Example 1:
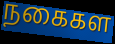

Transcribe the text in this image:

நகைகள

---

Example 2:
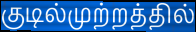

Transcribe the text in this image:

குடில்முற்றத்தில்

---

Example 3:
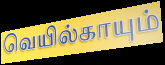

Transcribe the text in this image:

வெயில்காயும்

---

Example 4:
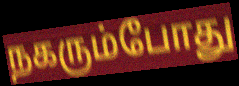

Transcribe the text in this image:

நகரும்போது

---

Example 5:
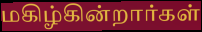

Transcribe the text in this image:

மகிழ்கின்றார்கள்